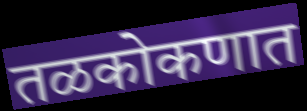
तळकोकणात